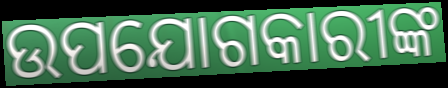
ଉପଯୋଗକାରୀଙ୍କ